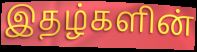
இதழ்களின்